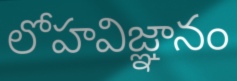
లోహవిజ్ఞానం